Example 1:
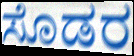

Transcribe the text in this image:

ಸೊಡರ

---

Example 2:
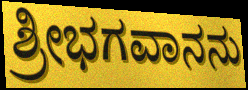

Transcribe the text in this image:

ಶ್ರೀಭಗವಾನನು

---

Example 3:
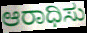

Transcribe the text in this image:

ಆರಾಧಿಸು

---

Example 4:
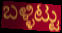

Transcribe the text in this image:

ಬಳ್ಳಿಟ್ಟು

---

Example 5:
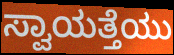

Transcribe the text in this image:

ಸ್ವಾಯತ್ತೆಯು